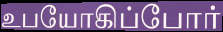
உபயோகிப்போர்